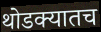
थोडक्यातच